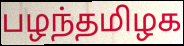
பழந்தமிழக